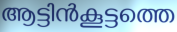
ആട്ടിൻകൂട്ടത്തെ